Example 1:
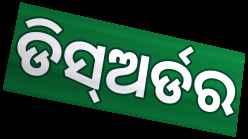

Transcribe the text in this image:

ଡିସ୍ଅର୍ଡର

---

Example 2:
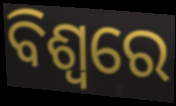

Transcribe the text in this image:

ବିଶ୍ଵରେ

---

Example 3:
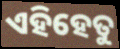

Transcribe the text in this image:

ଏହିହେତୁ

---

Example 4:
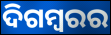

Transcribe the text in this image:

ଦିଗମ୍ୱରର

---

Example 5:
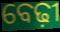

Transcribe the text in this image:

ବେଢ଼ୀ